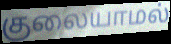
குலையாமல்